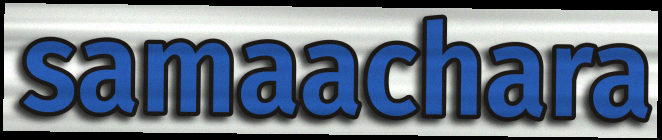
samaachara